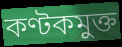
কণ্টকমুক্ত